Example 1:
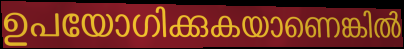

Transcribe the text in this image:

ഉപയോഗിക്കുകയാണെങ്കിൽ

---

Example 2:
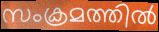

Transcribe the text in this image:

സംക്രമത്തിൽ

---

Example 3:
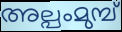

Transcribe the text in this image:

അല്പംമുമ്പ്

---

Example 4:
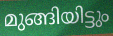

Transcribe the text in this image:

മുങ്ങിയിട്ടും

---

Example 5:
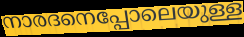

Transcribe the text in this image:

നാരദനെപ്പോലെയുള്ള